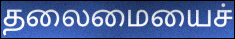
தலைமையைச்